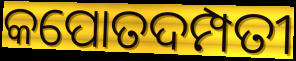
କପୋତଦମ୍ପତୀ